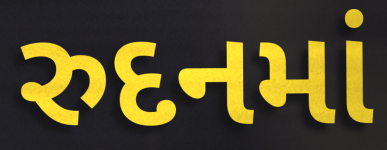
રુદનમાં